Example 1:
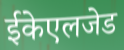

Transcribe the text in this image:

ईकेएलजेड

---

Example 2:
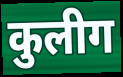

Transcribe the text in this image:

कुलीग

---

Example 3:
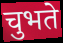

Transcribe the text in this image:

चुभते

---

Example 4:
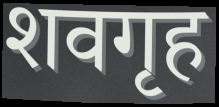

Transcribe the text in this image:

शवगृह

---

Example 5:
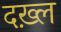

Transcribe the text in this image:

दख़्ल